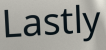
Lastly